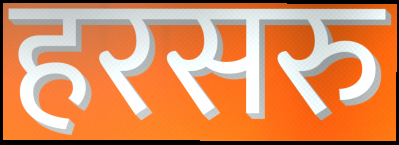
हरसरु